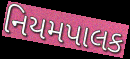
નિયમપાલક